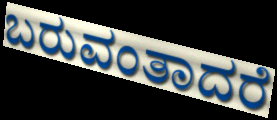
ಬರುವಂತಾದರೆ